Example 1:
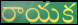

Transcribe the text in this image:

రాయక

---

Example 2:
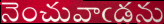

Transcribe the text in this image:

నెంచువాఁడను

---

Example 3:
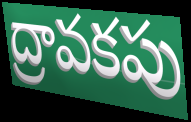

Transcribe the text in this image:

ద్రావకపు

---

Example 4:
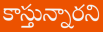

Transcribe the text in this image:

కాస్తున్నారని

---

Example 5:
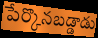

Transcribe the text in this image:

పేర్కొనబడ్డాడు